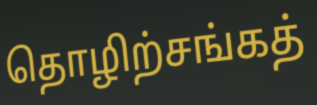
தொழிற்சங்கத்